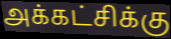
அக்கட்சிக்கு